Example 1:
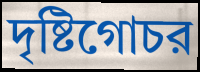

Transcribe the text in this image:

দৃষ্টিগোচর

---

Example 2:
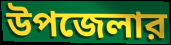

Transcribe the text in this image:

উপজেলার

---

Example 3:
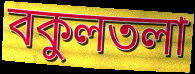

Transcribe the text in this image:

বকুলতলা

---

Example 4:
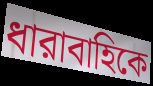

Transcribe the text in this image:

ধারাবাহিকে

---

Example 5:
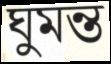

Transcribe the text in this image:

ঘুমন্ত